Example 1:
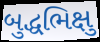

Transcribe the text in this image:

બુદ્ધભિક્ષુ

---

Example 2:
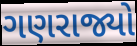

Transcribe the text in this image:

ગણરાજ્યો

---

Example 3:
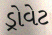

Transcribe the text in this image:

ડ્રોવેટ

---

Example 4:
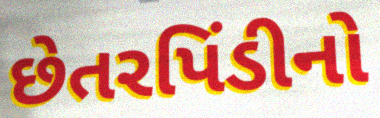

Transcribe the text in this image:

છેતરપિંડીનો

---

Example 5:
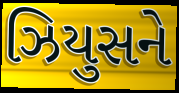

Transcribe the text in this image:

ઝિયુસને